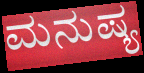
ಮನುಷ್ಯ